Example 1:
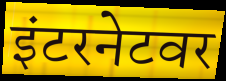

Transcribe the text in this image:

इंटरनेटवर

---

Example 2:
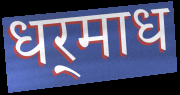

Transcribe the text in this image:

धर्माध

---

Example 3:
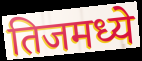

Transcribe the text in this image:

तिजमध्ये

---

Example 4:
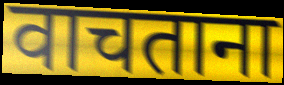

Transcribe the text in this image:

वाचताना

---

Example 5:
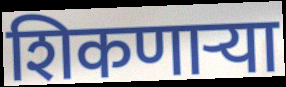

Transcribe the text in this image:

शिकणार्‍या